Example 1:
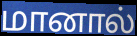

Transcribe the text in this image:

மானால்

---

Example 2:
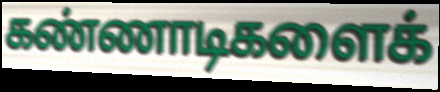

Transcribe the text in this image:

கண்ணாடிகளைக்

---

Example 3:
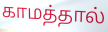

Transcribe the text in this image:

காமத்தால்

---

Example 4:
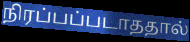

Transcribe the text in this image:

நிரப்பப்படாததால்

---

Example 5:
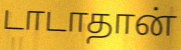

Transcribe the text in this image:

டாடாதான்